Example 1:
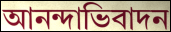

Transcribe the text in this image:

আনন্দাভিবাদন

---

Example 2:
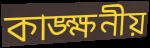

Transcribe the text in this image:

কাঙ্ক্ষনীয়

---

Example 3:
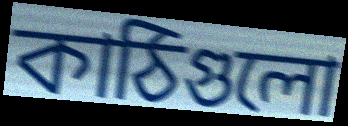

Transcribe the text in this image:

কাঠিগুলো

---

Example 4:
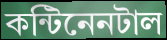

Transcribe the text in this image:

কন্টিনেনটাল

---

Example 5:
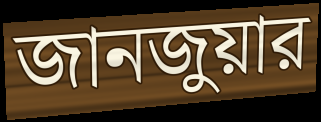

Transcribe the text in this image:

জানজুয়ার